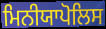
ਮਿਨੀਯਾਪੋਲਿਸ